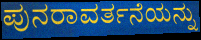
ಪುನರಾವರ್ತನೆಯನ್ನು